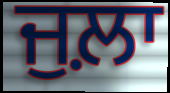
ਜੁਲ਼ਾ